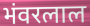
भंवरलाल